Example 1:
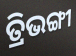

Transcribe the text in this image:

ତ୍ରିଭଙ୍ଗୀ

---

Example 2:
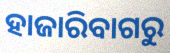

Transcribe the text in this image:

ହାଜାରିବାଗରୁ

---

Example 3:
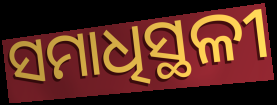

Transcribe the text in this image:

ସମାଧିସ୍ଥଳୀ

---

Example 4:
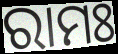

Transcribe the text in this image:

ରାମଃ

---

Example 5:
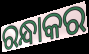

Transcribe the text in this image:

ରନ୍ଧାକର